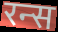
रन्स